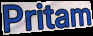
Pritam